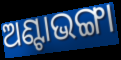
ଅଣ୍ଟାଭଙ୍ଗା